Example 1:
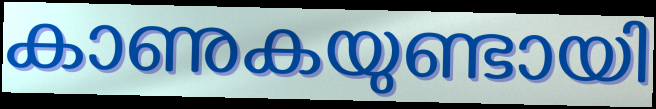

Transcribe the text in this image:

കാണുകയുണ്ടായി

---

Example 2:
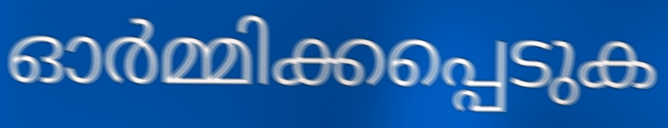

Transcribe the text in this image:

ഓർമ്മിക്കപ്പെടുക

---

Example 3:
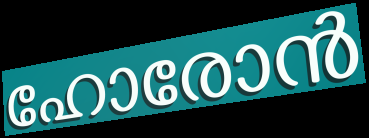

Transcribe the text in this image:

ഹോരോൻ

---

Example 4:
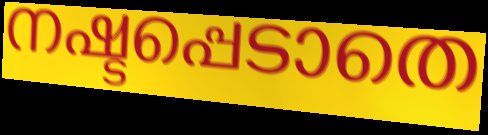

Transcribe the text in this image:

നഷ്ടപ്പെടാതെ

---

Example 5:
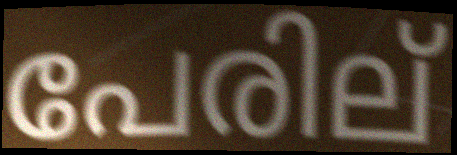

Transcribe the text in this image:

പേരില്